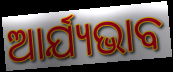
ଆର୍ଯ୍ୟଭାବ